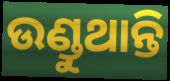
ଉଣ୍ଡୁଥାନ୍ତି